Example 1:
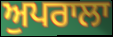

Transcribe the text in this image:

ਅੁਪਰਾਲਾ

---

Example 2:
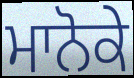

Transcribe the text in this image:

ਮਾਨੋਕੇ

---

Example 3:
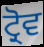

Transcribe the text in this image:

ਟ੍ਰੋਵ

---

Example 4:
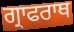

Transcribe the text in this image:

ਗ੍ਰਾਫਰਾਥ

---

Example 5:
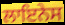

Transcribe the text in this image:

ਲਾਇਨੇਸ